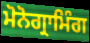
ਮੋਨੋਗ੍ਰਾਮਿੰਗ